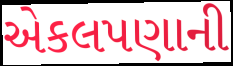
એકલપણાની